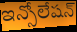
ఇన్సోలేషన్